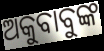
ଅକୁବାବୁଙ୍କ